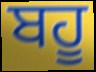
ਬਹੂ